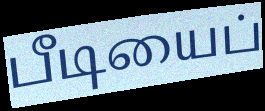
பீடியைப்